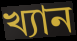
খ্যান